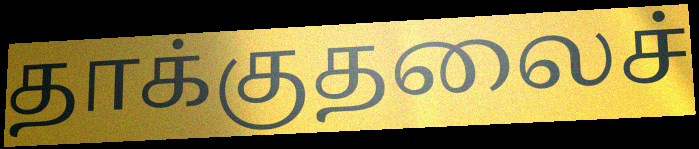
தாக்குதலைச்